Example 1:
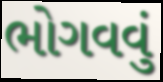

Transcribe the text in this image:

ભોગવવું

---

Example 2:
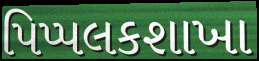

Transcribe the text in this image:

પિપ્પલકશાખા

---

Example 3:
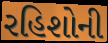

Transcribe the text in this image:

રહિશોની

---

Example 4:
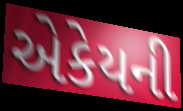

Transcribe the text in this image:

એકેયની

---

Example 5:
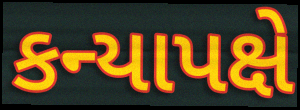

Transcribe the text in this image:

કન્યાપક્ષે